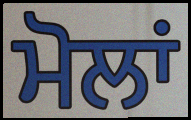
ਮੋਲਾਂ